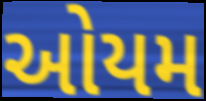
ઓયમ